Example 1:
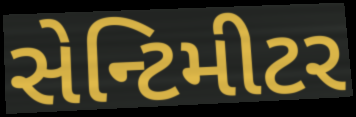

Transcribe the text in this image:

સેન્ટિમીટર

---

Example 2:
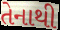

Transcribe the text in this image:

તેનાથી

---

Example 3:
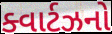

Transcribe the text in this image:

ક્વાર્ટઝનો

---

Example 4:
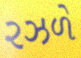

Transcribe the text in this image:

રઝળે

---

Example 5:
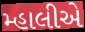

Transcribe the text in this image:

મ્હાલીએ